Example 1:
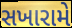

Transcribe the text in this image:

સખારામે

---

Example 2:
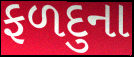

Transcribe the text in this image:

ફળદુના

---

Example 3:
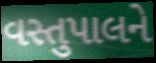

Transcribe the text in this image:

વસ્તુપાલને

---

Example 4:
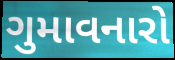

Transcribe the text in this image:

ગુમાવનારો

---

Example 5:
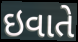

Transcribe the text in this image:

ઇવાતે